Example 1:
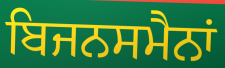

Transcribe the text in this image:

ਬਿਜਨਸਮੈਨਾਂ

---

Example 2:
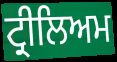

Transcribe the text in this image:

ਟ੍ਰੀਲਿਅਮ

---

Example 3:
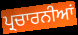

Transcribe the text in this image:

ਪ੍ਰਚਾਰਨੀਆਂ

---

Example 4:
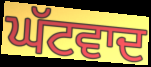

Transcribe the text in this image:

ਘੱਟਵਾਦ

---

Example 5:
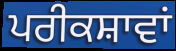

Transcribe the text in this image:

ਪਰੀਕਸ਼ਾਵਾਂ